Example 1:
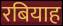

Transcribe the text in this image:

रबियाह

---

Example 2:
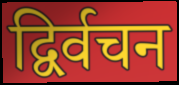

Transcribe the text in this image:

द्विर्वचन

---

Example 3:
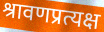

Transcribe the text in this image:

श्रावणप्रत्यक्ष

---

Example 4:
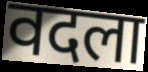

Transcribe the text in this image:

वदला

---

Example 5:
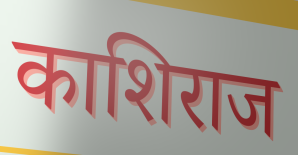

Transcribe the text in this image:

काशिराज